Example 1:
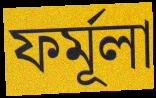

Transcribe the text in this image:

ফৰ্মূলা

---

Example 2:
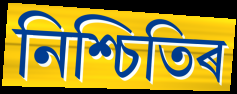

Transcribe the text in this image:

নিশ্চিতিৰ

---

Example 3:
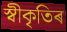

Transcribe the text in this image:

স্বীকৃতিৰ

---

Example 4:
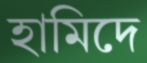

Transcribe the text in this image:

হামিদে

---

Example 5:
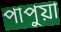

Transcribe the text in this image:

পাপুয়া